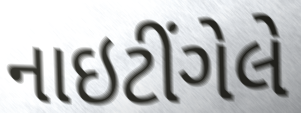
નાઇટીંગેલે